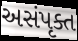
અસંપૃક્ત